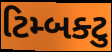
ટિમ્બક્ટુ